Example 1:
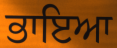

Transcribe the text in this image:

ਭਾਇਆ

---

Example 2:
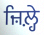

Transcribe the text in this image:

ਜ਼ਿਲ਼੍ਹੇ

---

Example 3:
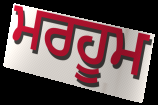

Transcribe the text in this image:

ਮਰਹੂਮ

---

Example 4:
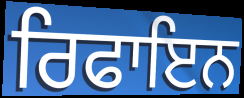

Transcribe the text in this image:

ਰਿਫਾਇਨ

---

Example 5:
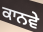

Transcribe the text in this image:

ਕਾਨਵੇ